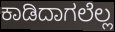
ಕಾಡಿದಾಗಲೆಲ್ಲ